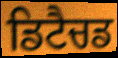
ਡਿਟੈਚਡ